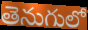
తెనుగులో